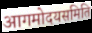
आगमोदयसमिति